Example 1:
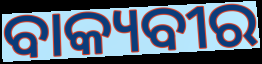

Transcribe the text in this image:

ବାକ୍ୟବୀର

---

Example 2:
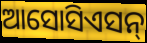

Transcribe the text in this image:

ଆସୋସିଏସନ୍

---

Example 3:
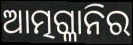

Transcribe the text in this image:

ଆତ୍ମଗ୍ଳାନିର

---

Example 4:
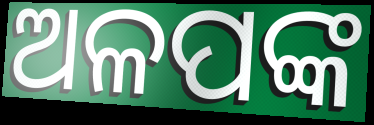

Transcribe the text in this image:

ଅଳପଙ୍କ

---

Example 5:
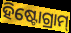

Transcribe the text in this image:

ହିଷ୍ଟୋଗ୍ରାମ୍